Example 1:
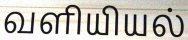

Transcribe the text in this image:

வளியியல்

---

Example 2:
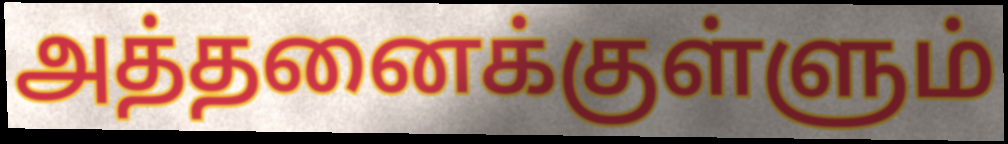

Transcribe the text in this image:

அத்தனைக்குள்ளும்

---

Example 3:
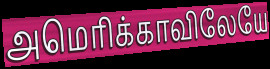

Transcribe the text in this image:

அமெரிக்காவிலேயே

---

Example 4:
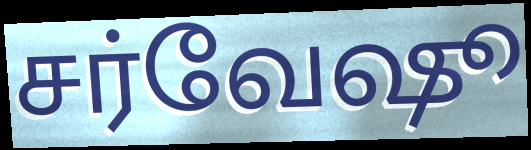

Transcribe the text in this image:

சர்வேஷூ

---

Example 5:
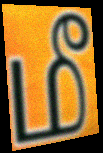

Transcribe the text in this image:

மீ